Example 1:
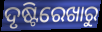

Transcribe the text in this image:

ଦୃଷ୍ଟିରେଖାରୁ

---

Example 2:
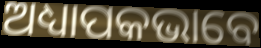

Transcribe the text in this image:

ଅଧ୍ୟାପକଭାବେ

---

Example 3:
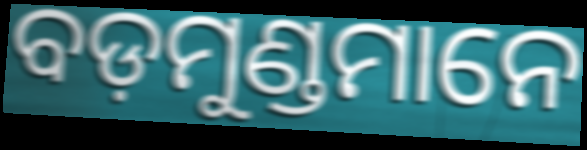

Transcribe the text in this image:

ବଡ଼ମୁଣ୍ଡମାନେ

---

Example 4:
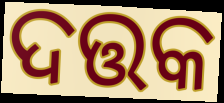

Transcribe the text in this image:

ଦତ୍ତକ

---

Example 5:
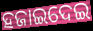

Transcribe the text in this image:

ହଜାଇଦେଇ